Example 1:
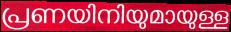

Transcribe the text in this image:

പ്രണയിനിയുമായുള്ള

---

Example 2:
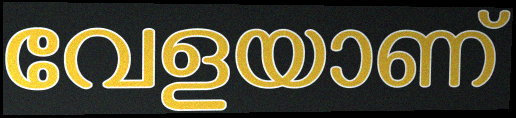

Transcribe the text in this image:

വേളയാണ്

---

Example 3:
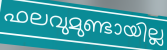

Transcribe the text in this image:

ഫലവുമുണ്ടായില്ല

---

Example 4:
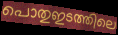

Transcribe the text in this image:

പൊതുഇടത്തിലെ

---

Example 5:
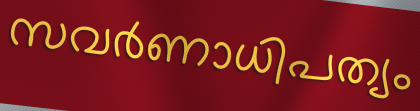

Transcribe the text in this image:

സവർണാധിപത്യം